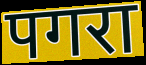
पगरा